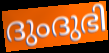
ദുംദുഭി